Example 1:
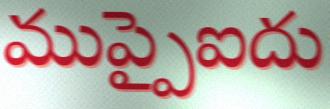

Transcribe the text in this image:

ముప్పైఐదు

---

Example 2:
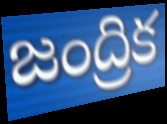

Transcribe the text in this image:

జంద్రిక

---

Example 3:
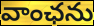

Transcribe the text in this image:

వాంఛను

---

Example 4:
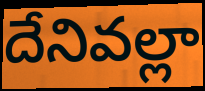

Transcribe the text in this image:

దేనివల్లా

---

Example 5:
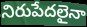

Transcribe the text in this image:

నిరుపేదలైనా